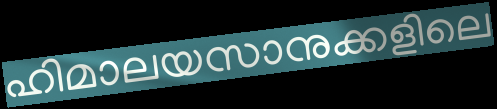
ഹിമാലയസാനുക്കളിലെ